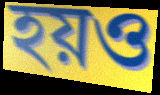
হয়ও